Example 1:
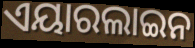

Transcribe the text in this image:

ଏୟାରଲାଇନ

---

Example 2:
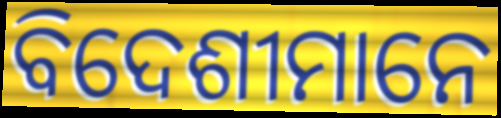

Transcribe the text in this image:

ବିଦେଶୀମାନେ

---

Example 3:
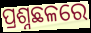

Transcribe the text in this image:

ପ୍ରଶ୍ନଛଳରେ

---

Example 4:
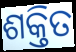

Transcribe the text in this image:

ଶକ୍ତିତ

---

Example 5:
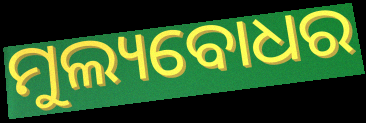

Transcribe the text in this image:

ମୁଲ୍ୟବୋଧର